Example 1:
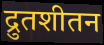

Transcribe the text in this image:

द्रुतशीतन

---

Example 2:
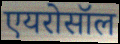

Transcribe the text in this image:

एयरोसॉल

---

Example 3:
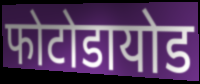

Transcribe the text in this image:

फोटोडायोड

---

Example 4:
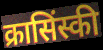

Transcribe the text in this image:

क्रासिंस्की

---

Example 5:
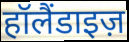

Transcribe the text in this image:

हॉलैंडाइज़